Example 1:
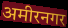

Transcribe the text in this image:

अमीरनगर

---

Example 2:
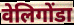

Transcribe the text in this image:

वेलिगोंडा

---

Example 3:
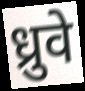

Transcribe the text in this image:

ध्रुवे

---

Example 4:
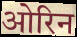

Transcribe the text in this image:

ओरिन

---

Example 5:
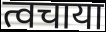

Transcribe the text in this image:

त्वचाया